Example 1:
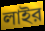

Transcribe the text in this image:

লাইর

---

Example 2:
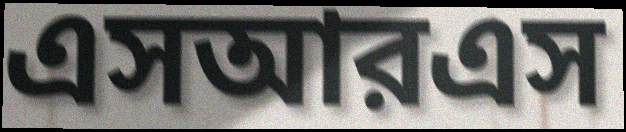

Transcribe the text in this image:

এসআরএস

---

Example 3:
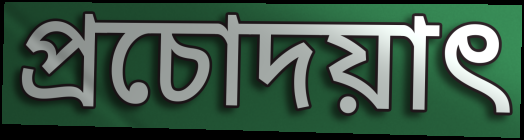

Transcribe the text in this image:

প্রচোদয়াৎ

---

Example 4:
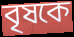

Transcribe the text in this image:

বৃষকে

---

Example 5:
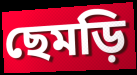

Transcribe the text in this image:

ছেমড়ি